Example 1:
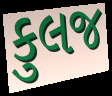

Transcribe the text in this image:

કુલજ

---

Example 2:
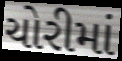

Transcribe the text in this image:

ચોરીમાં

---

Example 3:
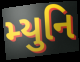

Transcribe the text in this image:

મ્યુનિ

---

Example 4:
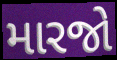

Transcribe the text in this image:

મારજો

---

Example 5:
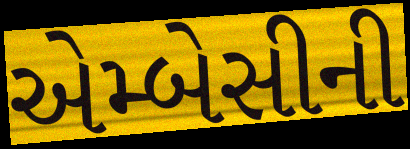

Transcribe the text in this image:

એમ્બેસીની